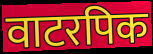
वाटरपिक